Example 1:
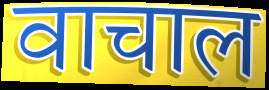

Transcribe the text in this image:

वाचाल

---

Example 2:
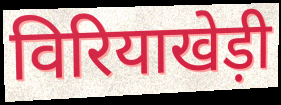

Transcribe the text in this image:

विरियाखेड़ी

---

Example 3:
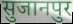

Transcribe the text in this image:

सुजानपुर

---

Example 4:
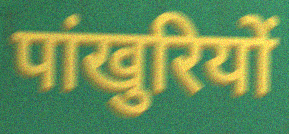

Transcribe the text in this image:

पांखुरियों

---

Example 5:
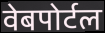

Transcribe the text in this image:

वेबपोर्टल